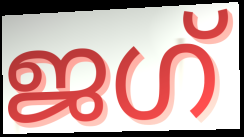
ജഗ്